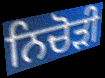
ਨਿਚੋੜੀ